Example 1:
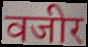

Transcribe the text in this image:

वजीर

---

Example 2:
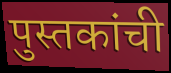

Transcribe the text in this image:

पुस्तकांची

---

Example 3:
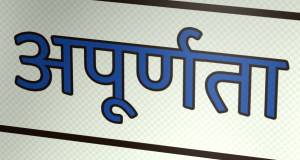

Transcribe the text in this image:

अपूर्णता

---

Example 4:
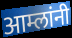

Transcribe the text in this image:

आम्लांनी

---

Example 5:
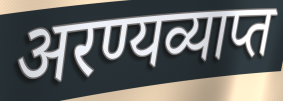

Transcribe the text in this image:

अरण्यव्याप्त